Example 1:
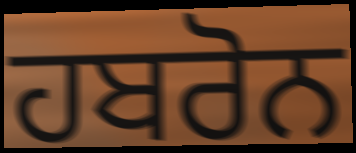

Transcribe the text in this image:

ਹਬਰੋਨ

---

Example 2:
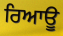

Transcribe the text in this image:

ਰਿਆਊ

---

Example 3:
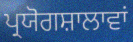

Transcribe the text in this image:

ਪ੍ਰਯੋਗਸ਼ਾਲਾਵਾਂ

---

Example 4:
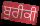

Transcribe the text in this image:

ਬੁਰੀਕੀ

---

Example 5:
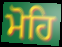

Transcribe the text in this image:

ਮੋਹਿ